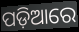
ପଡ଼ିଆରେ